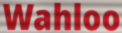
Wahloo